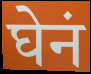
घेनं